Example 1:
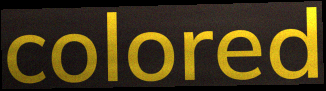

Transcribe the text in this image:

colored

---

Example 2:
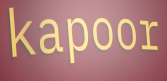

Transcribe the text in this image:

kapoor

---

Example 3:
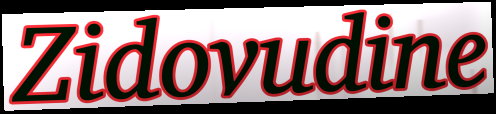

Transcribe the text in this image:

Zidovudine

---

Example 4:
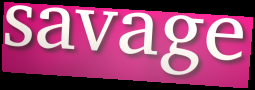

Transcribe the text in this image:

savage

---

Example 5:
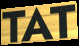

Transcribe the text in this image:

TAT